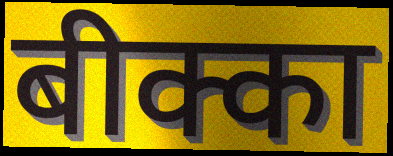
बीक्का